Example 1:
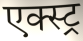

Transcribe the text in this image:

एक्स्ट्र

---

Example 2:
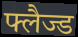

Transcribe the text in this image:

फ्लैज्ड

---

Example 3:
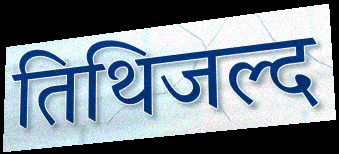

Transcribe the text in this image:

तिथिजल्द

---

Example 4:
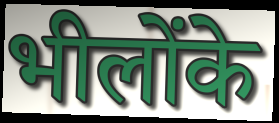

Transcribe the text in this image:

भीलोंके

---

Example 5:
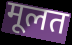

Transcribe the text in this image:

मूलत